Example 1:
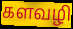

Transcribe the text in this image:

களவழி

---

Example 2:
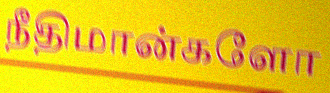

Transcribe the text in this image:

நீதிமான்களோ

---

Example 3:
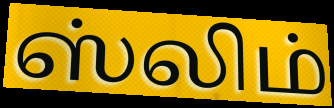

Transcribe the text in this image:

ஸ்லிம்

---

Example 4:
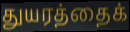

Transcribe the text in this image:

துயரத்தைக்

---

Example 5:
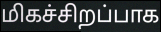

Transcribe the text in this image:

மிகச்சிறப்பாக